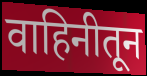
वाहिनीतून